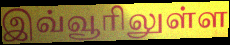
இவ்வூரிலுள்ள